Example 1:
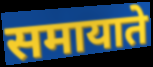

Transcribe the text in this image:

समायाते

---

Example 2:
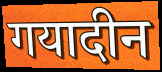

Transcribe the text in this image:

गयादीन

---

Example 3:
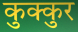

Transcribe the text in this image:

कुक्कुर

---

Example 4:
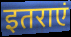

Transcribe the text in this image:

इतराएं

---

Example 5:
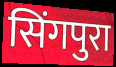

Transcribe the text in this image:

सिंगपुरा